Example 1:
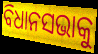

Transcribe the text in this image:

ବିଧାନସଭାକୁ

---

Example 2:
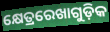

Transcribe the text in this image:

କ୍ଷେତ୍ରରେଖାଗୁଡ଼ିକ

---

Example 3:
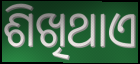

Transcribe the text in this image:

ଶିଖିଥାଏ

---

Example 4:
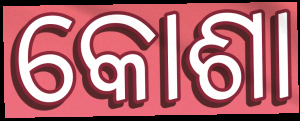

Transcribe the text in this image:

କୋଶା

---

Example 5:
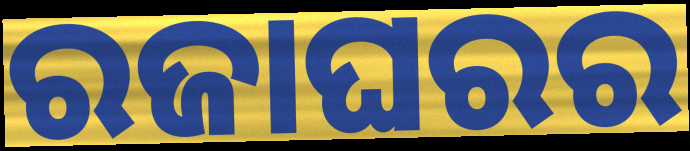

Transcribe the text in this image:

ରଜାଘରର